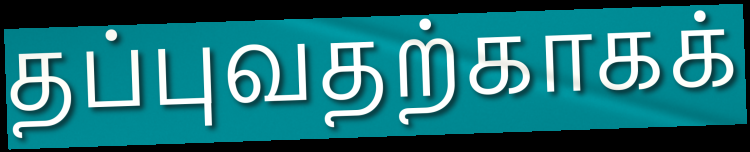
தப்புவதற்காகக்